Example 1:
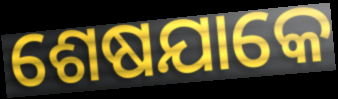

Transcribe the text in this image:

ଶେଷଯାକେ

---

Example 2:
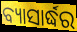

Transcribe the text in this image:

ବ୍ୟାସାର୍ଦ୍ଧର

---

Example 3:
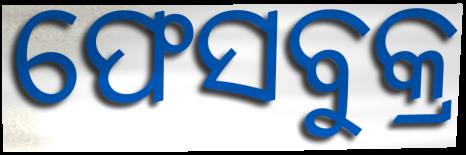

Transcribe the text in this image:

ଫେସବୁକ୍ର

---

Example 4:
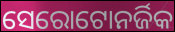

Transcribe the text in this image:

ସେରୋଟୋନର୍ଜିକ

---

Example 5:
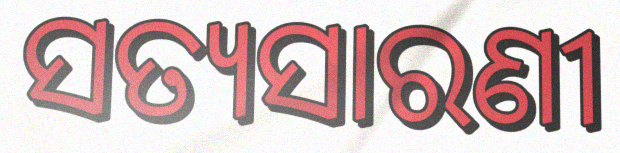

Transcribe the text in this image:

ସତ୍ୟସାରଣୀ